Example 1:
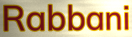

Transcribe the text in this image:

Rabbani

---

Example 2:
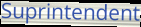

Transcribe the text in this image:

Suprintendent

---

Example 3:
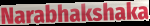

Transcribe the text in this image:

Narabhakshaka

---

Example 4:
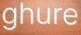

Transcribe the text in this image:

ghure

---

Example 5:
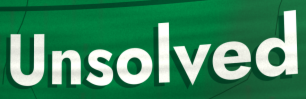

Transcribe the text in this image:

Unsolved